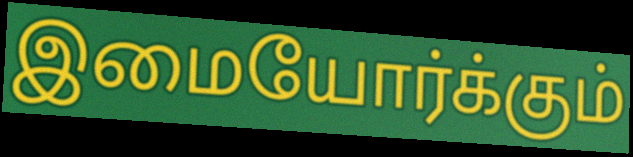
இமையோர்க்கும்